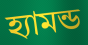
হ্যামন্ড